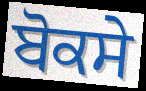
ਬੋਕਸੇ